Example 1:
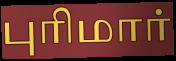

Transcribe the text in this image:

புரிமார்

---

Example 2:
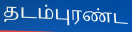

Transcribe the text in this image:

தடம்புரண்ட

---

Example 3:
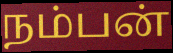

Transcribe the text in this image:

நம்பன்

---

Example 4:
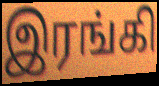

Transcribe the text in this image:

இரங்கி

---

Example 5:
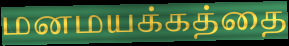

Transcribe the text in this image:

மனமயக்கத்தை